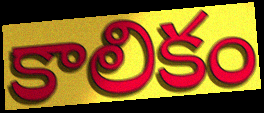
కాలికం